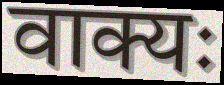
वाक्यः